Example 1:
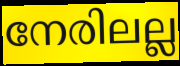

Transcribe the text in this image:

നേരിലല്ല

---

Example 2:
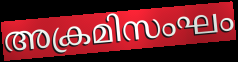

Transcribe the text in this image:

അക്രമിസംഘം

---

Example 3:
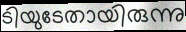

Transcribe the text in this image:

ടിയുടേതായിരുന്നു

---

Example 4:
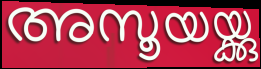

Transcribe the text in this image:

അസൂയയ്ക്കു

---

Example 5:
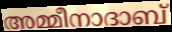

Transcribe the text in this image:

അമ്മീനാദാബ്